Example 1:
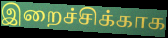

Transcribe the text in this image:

இறைச்சிக்காக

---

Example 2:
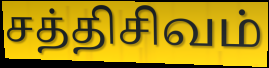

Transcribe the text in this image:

சத்திசிவம்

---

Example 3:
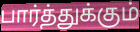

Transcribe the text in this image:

பார்த்துக்கும்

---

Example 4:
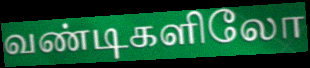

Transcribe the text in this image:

வண்டிகளிலோ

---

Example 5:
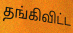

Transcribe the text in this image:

தங்கிவிட்ட